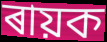
ৰায়ক